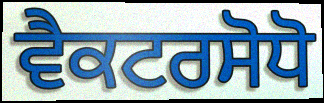
ਵੈਕਟਰਸੋਧੋ